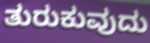
ತುರುಕುವುದು